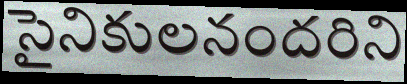
సైనికులనందరిని